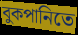
বুকপানিতে